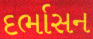
દર્ભાસન